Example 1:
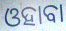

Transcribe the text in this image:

ଓହାବା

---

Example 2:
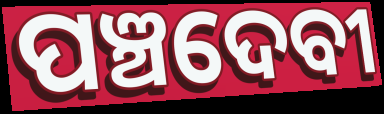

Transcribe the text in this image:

ପଞ୍ଚଦେବୀ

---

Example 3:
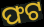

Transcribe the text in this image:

ଫଟ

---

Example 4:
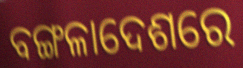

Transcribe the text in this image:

ବଙ୍ଗଳାଦେଶରେ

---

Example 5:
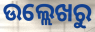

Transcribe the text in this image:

ଉଲ୍ଲେଖରୁ